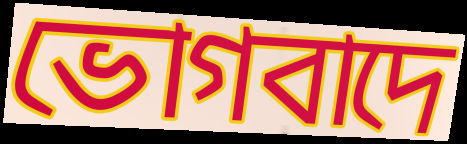
ভোগবাদে